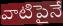
వాటిపైనే